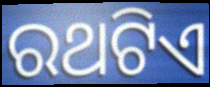
ରଥଟିଏ